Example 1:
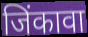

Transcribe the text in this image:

जिंकावा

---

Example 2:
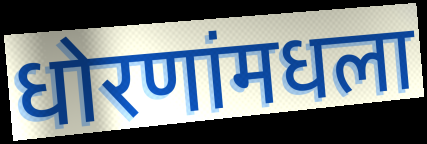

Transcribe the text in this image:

धोरणांमधला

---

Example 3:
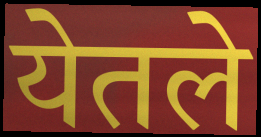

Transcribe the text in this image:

येतले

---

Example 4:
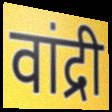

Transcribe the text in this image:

वांद्री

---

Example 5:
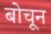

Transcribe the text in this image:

बोचून